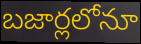
బజార్లలోనూ